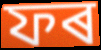
ফৰ